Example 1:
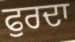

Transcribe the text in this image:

ਫੁਰਦਾ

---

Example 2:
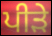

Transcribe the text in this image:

ਪੀੜੇ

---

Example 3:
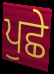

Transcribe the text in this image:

ਪੁਛੇ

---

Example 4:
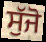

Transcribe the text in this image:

ਸੁੱਜੋ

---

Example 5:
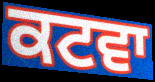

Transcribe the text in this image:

ਕਟਵਾ